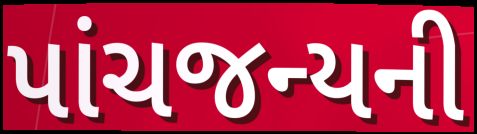
પાંચજન્યની